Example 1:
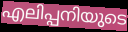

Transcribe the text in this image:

എലിപ്പനിയുടെ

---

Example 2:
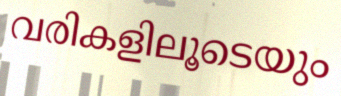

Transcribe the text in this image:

വരികളിലൂടെയും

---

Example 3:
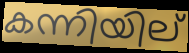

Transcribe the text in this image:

കന്നിയില്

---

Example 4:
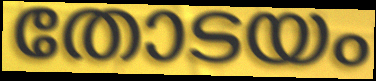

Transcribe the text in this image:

തോടയം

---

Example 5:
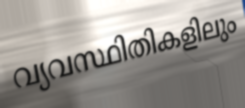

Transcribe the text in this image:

വ്യവസ്ഥിതികളിലും